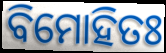
ବିମୋହିତଃ